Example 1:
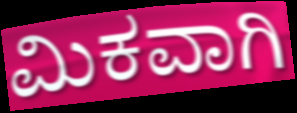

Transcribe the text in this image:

ಮಿಕವಾಗಿ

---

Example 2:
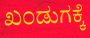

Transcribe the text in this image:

ಖಂಡುಗಕ್ಕೆ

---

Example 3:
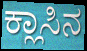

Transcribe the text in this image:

ಕ್ಲಾಸಿನ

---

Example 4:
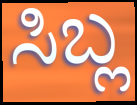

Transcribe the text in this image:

ಸಿಬ್ಲ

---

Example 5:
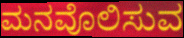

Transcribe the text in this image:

ಮನವೊಲಿಸುವ